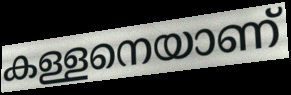
കള്ളനെയാണ്